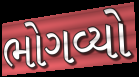
ભોગવ્યો